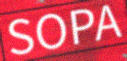
SOPA